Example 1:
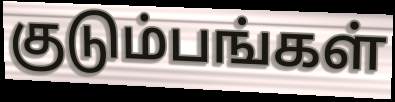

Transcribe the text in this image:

குடும்பங்கள்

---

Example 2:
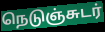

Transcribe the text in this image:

நெடுஞ்சுடர்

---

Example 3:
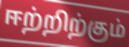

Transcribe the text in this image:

ஈற்றிற்கும்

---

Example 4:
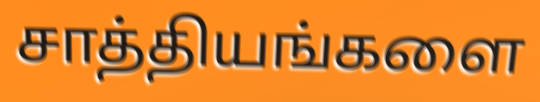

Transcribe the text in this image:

சாத்தியங்களை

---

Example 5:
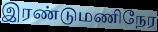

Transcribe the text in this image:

இரண்டுமணிநேர